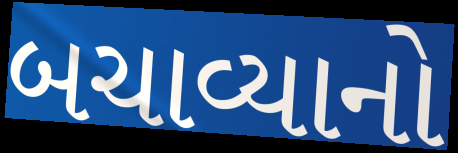
બચાવ્યાનો